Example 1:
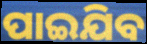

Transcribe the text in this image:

ପାଇଯିବ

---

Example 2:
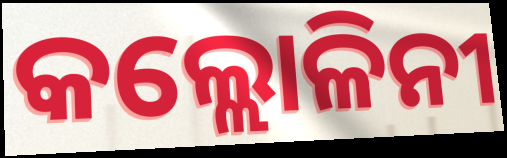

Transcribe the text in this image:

କଲ୍ଲୋଳିନୀ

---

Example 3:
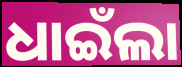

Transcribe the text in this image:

ଧାଇଁଲା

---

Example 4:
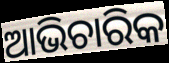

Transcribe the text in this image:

ଆଭିଚାରିକ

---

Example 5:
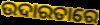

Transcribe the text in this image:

ଉଦାରତାରେ